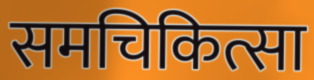
समचिकित्सा